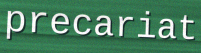
precariat